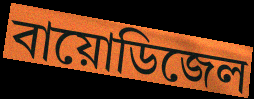
বায়োডিজেল